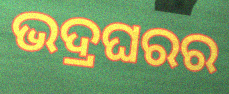
ଭଦ୍ରଘରର